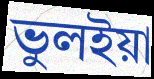
ভুলইয়া